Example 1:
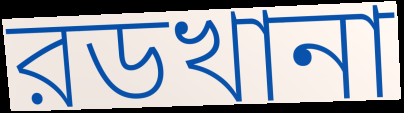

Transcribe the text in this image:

রডখানা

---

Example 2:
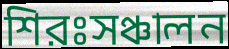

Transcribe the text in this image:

শিরঃসঞ্চালন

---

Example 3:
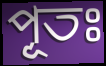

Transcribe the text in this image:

পূতঃ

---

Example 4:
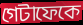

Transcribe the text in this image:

গেটাফেকে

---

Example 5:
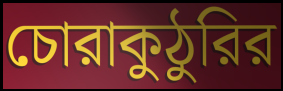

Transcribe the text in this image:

চোরাকুঠুরির